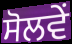
ਸੋਲਵੇਂ